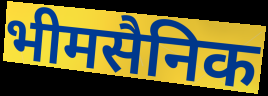
भीमसैनिक